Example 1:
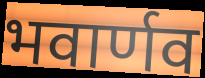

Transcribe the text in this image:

भवार्णव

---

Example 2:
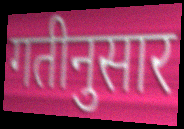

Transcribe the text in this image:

गतीनुसार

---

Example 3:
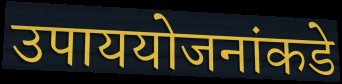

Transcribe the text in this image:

उपाययोजनांकडे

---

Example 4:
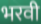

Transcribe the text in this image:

भरवी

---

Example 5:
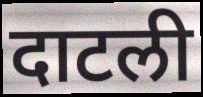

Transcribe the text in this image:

दाटली